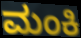
ಮಂಕಿ